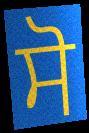
ਸੋ